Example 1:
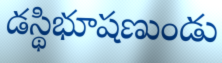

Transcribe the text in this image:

డస్థిభూషణుండు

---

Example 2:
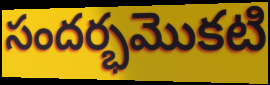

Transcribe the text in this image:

సందర్భమొకటి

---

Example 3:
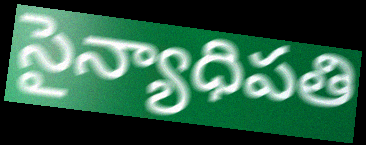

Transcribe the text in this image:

సైన్యాధిపతి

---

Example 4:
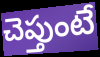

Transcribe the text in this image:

చెప్తుంటే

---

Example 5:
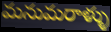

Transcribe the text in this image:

మనుమరాళ్ళు